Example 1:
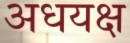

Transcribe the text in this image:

अधयक्ष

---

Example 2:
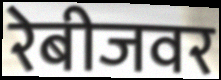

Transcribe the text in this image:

रेबीजवर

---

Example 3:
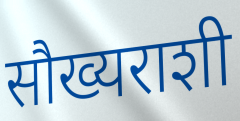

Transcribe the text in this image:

सौख्यराशी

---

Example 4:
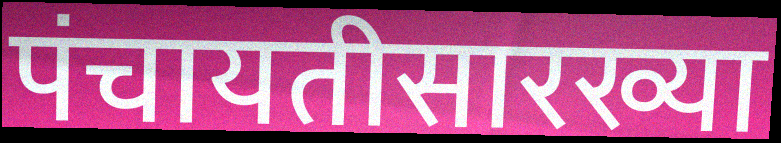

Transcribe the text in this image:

पंचायतीसारख्या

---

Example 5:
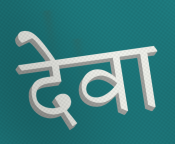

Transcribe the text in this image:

देवा